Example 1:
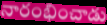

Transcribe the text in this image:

నారంభించాడు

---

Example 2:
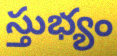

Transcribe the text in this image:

స్తుభ్యం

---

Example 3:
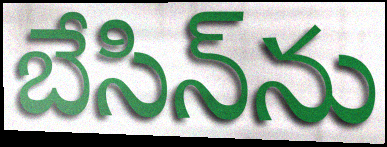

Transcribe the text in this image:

బేసిన్‌ను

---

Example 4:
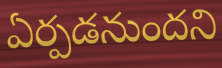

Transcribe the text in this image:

ఏర్పడనుందని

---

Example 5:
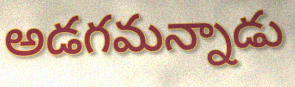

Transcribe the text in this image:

అడగమన్నాడు